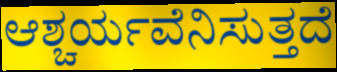
ಆಶ್ಚರ್ಯವೆನಿಸುತ್ತದೆ